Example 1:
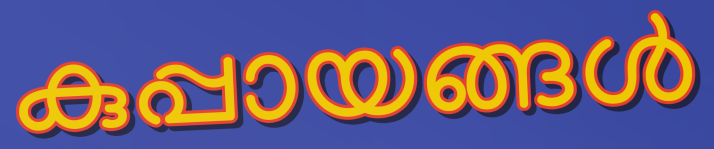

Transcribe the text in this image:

കുപ്പായങ്ങൾ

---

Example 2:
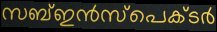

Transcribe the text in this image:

സബ്ഇൻസ്പെക്ടർ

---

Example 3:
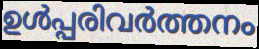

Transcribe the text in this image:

ഉൾപ്പരിവർത്തനം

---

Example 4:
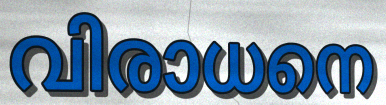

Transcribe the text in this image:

വിരാധനെ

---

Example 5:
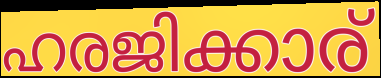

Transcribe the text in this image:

ഹരജിക്കാര്